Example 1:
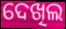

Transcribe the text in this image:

ଦେଖିଲ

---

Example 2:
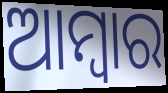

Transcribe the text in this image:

ଆମ୍ବାର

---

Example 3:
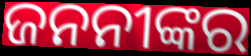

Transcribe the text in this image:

ଜନନୀଙ୍କର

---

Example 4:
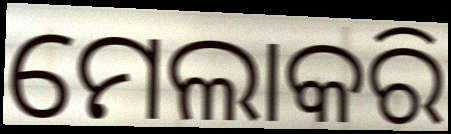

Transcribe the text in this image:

ମେଲାକରି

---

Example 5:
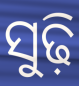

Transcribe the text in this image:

ସୁଢ଼ି